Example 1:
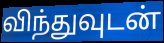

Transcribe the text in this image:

விந்துவுடன்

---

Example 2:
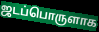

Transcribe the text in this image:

ஜடப்பொருளாக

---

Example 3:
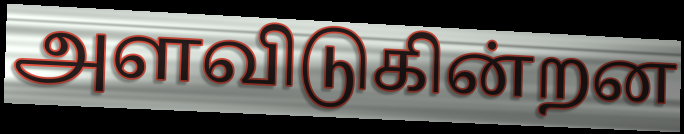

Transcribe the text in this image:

அளவிடுகின்றன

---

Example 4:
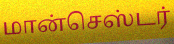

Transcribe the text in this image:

மான்செஸ்டர்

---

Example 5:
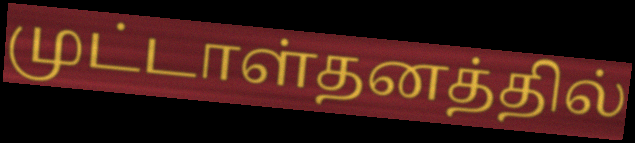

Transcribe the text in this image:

முட்டாள்தனத்தில்